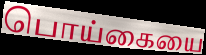
பொய்கையை